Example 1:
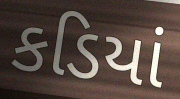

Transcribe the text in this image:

કડિયાં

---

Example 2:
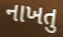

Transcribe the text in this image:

નાખતુ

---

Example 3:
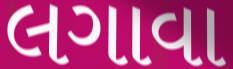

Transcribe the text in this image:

લગાવા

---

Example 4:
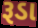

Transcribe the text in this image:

રૂડા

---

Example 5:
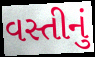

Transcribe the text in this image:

વસ્તીનું